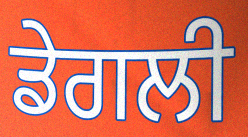
ਡੇਗਲੀ